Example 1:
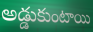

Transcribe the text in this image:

అడ్డుకుంటాయి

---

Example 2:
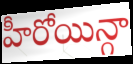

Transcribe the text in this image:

హీరోయిన్గా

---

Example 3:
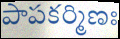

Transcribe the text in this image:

పాపకర్మిణః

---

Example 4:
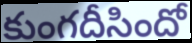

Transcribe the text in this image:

కుంగదీసిందో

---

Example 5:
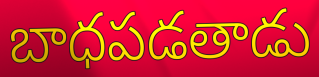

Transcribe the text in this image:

బాధపడతాడు